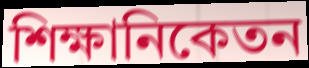
শিক্ষানিকেতন